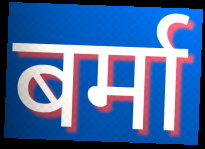
बर्मा